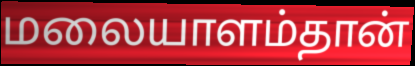
மலையாளம்தான்